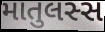
માતુલસ્સ